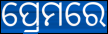
ପ୍ରେମରେ